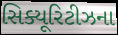
સિક્યૂરિટીઝના